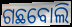
ଗଛବୋଲି